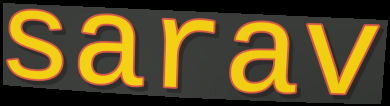
sarav